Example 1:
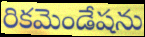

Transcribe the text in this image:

రికమెండేషను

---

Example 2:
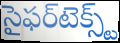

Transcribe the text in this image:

సైఫర్‌టెక్స్ట్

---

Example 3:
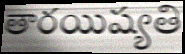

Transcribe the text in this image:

తారయిష్యతి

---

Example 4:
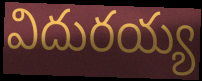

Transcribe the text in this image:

విదురయ్య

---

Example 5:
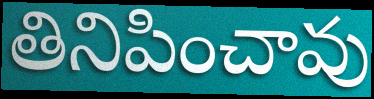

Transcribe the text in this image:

తినిపించావు